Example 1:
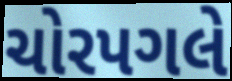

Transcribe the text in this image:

ચોરપગલે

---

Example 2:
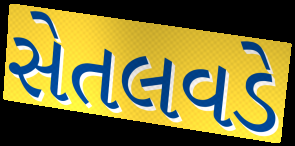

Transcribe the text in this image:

સેતલવડે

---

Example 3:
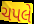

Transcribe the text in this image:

ચપલે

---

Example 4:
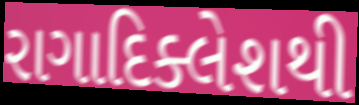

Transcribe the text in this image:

રાગાદિક્લેશથી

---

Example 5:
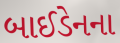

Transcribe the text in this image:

બાઈડેનના